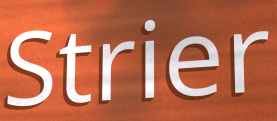
Strier